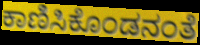
ಕಾಣಿಸಿಕೊಂಡನಂತೆ